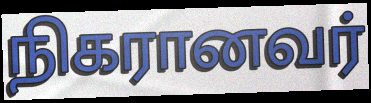
நிகரானவர்